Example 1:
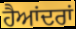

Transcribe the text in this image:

ਹੈਆਂਦਰਾਂ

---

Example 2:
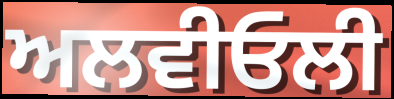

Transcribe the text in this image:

ਅਲਵੀਓਲੀ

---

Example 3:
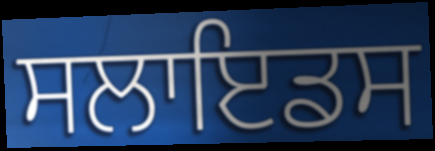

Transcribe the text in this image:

ਸਲਾਇਡਸ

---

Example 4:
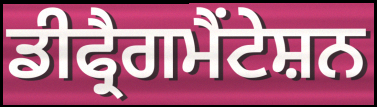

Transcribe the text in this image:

ਡੀਫ੍ਰੈਗਮੈਂਟੇਸ਼ਨ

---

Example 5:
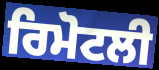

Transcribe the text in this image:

ਰਿਮੋਟਲੀ